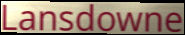
Lansdowne